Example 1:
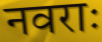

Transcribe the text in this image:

नवराः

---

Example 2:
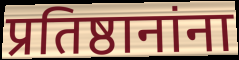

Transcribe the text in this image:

प्रतिष्ठानांना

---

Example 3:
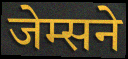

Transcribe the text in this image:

जेम्सने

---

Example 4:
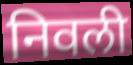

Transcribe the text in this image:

निवली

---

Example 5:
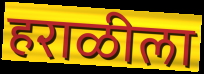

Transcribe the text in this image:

हराळीला